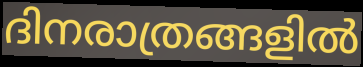
ദിനരാത്രങ്ങളിൽ